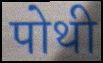
पोथी